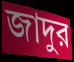
জাদুর